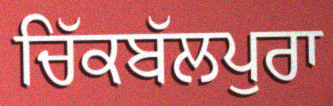
ਚਿੱਕਬੱਲਪੁਰਾ